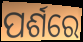
ପର୍ଶରେ